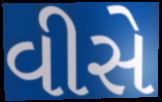
વીસે